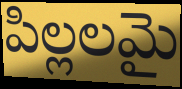
పిల్లలమై